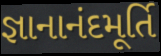
જ્ઞાનાનંદમૂર્તિ